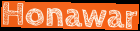
Honawar